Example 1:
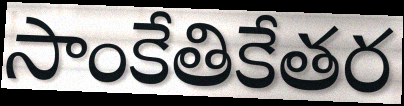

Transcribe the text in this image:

సాంకేతికేతర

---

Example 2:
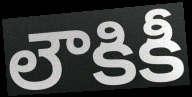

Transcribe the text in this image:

లౌకికీ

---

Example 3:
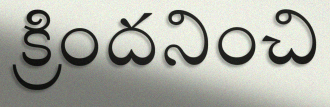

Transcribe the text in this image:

క్రిందనించి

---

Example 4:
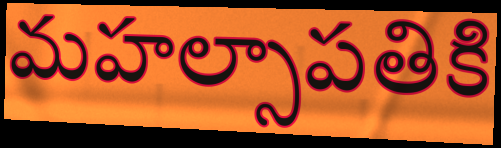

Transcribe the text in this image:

మహల్సాపతికి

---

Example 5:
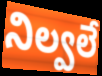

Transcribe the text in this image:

నిల్వలే